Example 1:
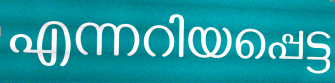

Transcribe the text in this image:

എന്നറിയപ്പെട്ട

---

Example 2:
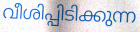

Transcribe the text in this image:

വീശിപ്പിടിക്കുന്ന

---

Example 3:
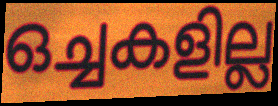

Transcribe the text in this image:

ഒച്ചകളില്ല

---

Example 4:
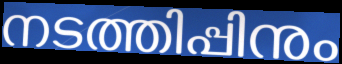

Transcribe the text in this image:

നടത്തിപ്പിനും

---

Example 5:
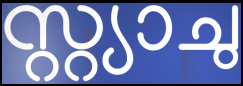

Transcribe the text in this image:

സ്റ്റ്യാചു